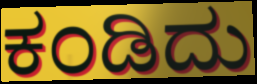
ಕಂಡಿದು